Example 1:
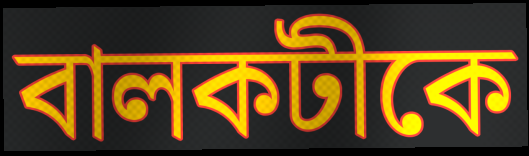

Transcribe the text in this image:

বালকটীকে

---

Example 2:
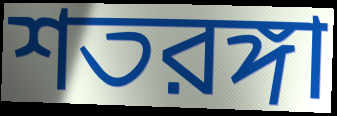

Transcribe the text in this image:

শতরঙ্গা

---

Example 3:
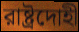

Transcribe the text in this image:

রাষ্ট্রদোহী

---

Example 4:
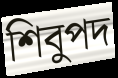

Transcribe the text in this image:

শিবুপদ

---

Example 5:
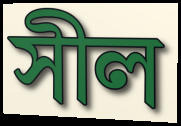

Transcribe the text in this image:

সীল